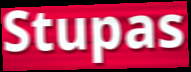
Stupas